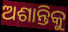
ଅଶାନ୍ତିକୁ